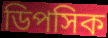
ডিপসিক